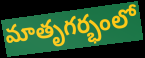
మాతృగర్భంలో